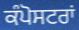
ਕੰਪੋਸਟਰਾਂ